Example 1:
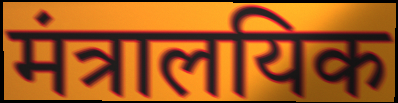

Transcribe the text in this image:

मंत्रालयिक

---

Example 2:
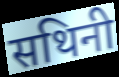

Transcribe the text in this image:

सथिनी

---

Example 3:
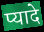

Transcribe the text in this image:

प्यादे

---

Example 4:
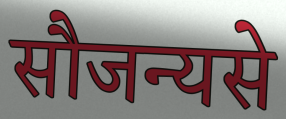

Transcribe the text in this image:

सौजन्यसे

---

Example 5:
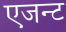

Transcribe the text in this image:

एजन्ट